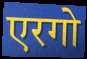
एरगो